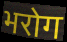
भरोग